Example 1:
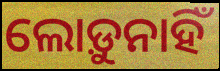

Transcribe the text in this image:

ଲୋଡ଼ୁନାହିଁ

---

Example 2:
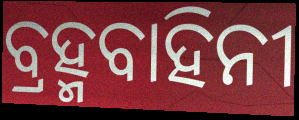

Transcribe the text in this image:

ବ୍ରହ୍ମବାହିନୀ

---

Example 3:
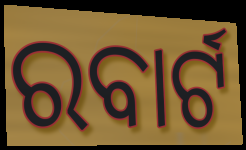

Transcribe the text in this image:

ରବାର୍ଟ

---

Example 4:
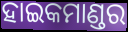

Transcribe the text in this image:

ହାଇକମାଣ୍ଡର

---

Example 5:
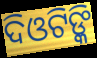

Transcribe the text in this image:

ଦିଓଟିଙ୍କି